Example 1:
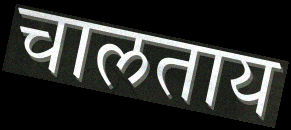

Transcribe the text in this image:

चालताय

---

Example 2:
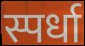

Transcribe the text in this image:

स्पर्धा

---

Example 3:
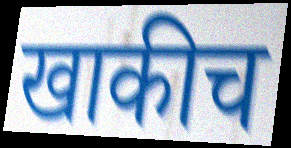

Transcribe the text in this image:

खाकीच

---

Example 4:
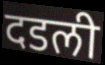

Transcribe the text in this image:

दडली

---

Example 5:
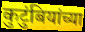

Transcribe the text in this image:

कुटुंबियांच्या